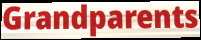
Grandparents